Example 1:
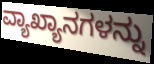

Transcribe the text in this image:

ವ್ಯಾಖ್ಯಾನಗಳನ್ನು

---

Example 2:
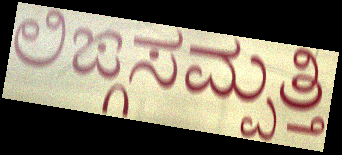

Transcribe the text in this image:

ಲಿಙ್ಗಸಮ್ಪತ್ತಿ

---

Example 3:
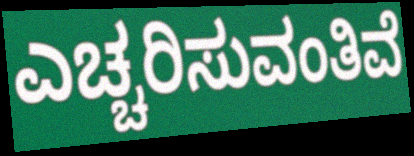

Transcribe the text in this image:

ಎಚ್ಚರಿಸುವಂತಿವೆ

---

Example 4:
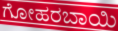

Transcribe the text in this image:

ಗೋಹರಬಾಯಿ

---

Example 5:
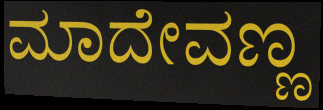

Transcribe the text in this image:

ಮಾದೇವಣ್ಣ